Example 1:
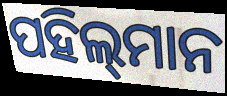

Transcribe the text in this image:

ପହିଲ୍‌ମାନ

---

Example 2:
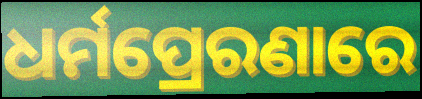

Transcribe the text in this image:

ଧର୍ମପ୍ରେରଣାରେ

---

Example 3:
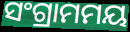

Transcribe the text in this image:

ସଂଗ୍ରାମମୟ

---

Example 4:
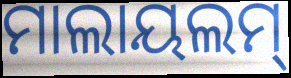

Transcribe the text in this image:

ମାଲାୟଲମ୍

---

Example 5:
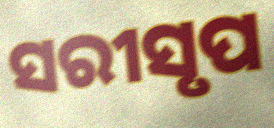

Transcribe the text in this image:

ସରୀସୃପ